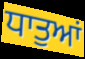
ਧਾਤੁਆਂ